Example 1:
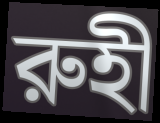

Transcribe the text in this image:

রুহী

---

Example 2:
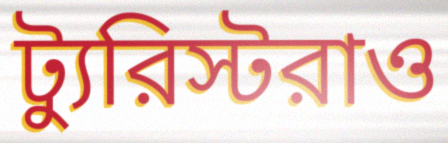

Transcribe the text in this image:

ট্যুরিস্টরাও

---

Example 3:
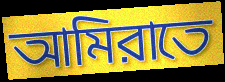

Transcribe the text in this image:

আমিরাতে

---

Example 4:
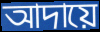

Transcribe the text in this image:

আদায়ে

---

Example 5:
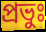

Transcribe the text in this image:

প্রভুঃ